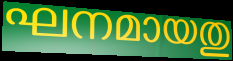
ഘനമായതു